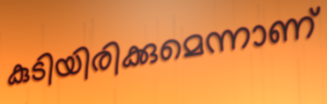
കുടിയിരിക്കുമെന്നാണ്